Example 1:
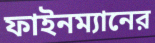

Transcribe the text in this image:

ফাইনম্যানের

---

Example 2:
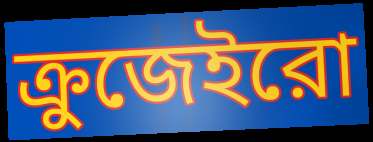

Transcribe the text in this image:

ক্রুজেইরো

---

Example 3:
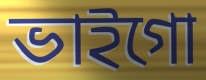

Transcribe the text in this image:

ভাইগো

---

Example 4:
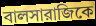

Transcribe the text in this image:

বালসারাজিকে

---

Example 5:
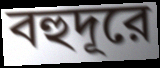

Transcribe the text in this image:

বহুদূরে